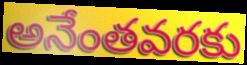
అనేంతవరకు